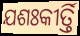
ଯଶଃକୀର୍ତ୍ତି